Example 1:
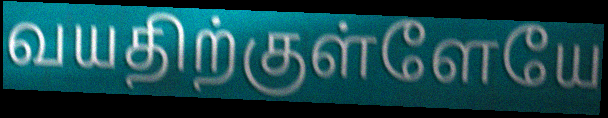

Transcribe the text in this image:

வயதிற்குள்ளேயே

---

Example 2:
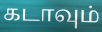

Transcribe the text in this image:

கடாவும்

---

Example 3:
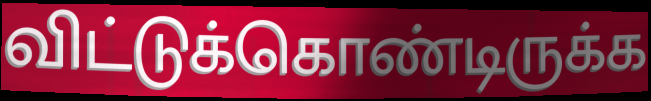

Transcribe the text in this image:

விட்டுக்கொண்டிருக்க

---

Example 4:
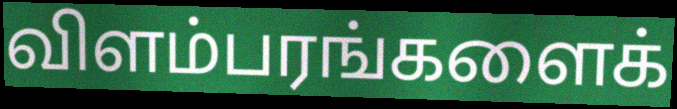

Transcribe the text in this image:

விளம்பரங்களைக்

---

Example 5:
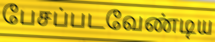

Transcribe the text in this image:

பேசப்படவேண்டிய